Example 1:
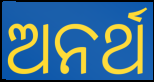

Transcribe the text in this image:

ଅନର୍ଥ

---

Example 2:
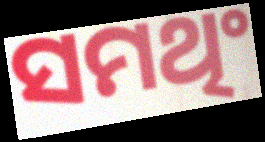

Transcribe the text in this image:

ସମଥିଂ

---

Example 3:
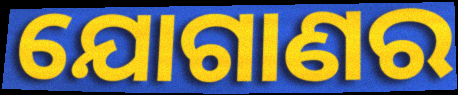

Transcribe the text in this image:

ଯୋଗାଣର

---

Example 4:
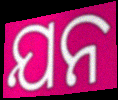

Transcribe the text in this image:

ଯନ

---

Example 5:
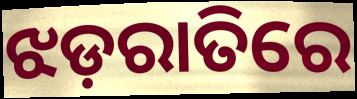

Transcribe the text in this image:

ଝଡ଼ରାତିରେ